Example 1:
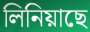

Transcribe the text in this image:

লিনিয়াছে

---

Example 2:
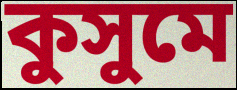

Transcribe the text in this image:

কুসুমে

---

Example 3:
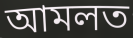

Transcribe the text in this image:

আমলত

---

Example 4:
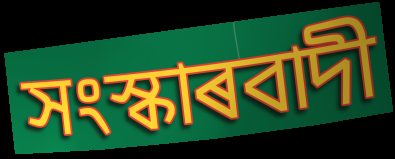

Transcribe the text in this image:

সংস্কাৰবাদী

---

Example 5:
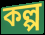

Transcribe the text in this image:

কল্প